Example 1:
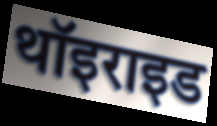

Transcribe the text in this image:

थॉइराइड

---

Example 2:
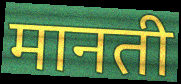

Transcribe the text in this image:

मानती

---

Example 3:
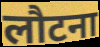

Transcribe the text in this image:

लौटना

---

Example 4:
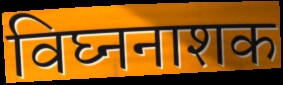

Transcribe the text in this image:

विघ्ननाशक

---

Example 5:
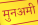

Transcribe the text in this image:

मुनअमी